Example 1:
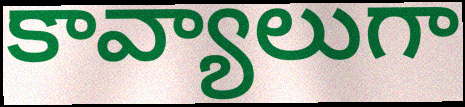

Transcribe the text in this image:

కావ్యాలుగా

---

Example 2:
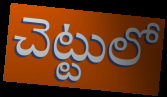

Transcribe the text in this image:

చెట్టులో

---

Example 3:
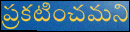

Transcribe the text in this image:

ప్రకటించమని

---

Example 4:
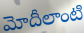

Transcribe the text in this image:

మోదీలాంటి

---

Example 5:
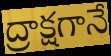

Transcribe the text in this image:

ద్రాక్షగానే